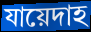
যায়েদাহ